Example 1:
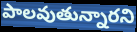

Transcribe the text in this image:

పాలవుతున్నారని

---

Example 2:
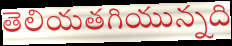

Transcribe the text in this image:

తెలియతగియున్నది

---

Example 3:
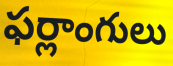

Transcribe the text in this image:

ఫర్లాంగులు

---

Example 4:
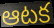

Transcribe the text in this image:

ఆటక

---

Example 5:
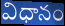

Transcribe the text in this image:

విధానం